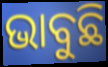
ଭାବୁଛି